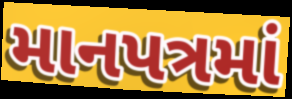
માનપત્રમાં